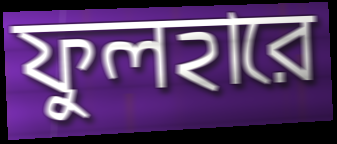
ফুলহারে